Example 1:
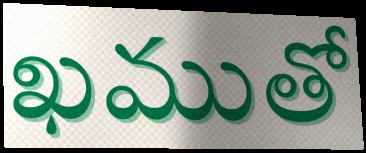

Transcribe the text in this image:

ఖముతో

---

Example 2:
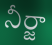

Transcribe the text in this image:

నీర్జా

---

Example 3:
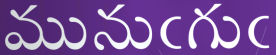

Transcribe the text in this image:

మునుఁగుఁ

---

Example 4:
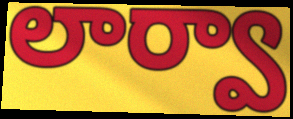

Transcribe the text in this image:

లార్వా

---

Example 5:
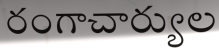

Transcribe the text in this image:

రంగాచార్యుల